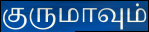
குருமாவும்